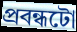
প্ৰবন্ধটো